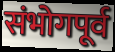
संभोगपूर्व